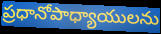
ప్రధానోపాధ్యాయులను